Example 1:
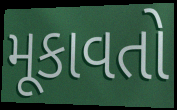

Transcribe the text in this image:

મૂકાવતો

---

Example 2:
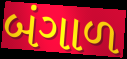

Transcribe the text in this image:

બંગાળ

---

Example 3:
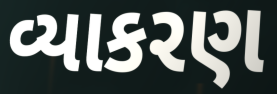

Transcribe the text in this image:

વ્યાકરણ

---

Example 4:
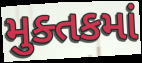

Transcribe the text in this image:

મુક્તકમાં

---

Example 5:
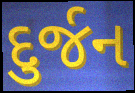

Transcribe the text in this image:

દુર્જન